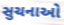
સુચનાઓ